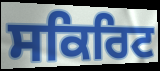
ਸਕਿਰਿਟ